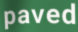
paved